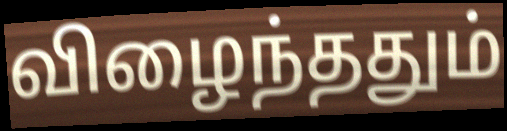
விழைந்ததும்